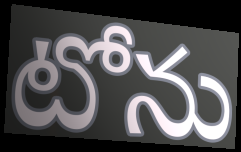
టోను